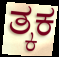
ತ್ಕಕ